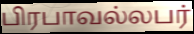
பிரபாவல்லபர்